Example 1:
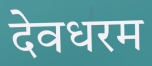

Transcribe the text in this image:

देवधरम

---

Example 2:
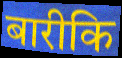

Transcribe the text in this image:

बारीकि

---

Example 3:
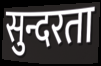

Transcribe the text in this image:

सुन्दरता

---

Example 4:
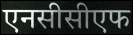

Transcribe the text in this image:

एनसीसीएफ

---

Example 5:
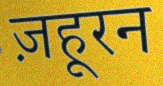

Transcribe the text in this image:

ज़हूरन